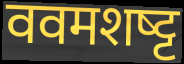
ववमशष्ट्ट